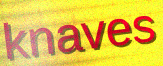
knaves